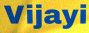
Vijayi